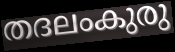
തദലംകുരു